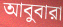
আবুবারা